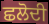
ਛਲੋਦੀ